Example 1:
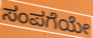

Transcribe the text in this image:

ಸಂಪಗೆಯೇ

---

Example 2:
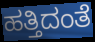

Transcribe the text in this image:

ಹತ್ತಿದಂತೆ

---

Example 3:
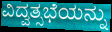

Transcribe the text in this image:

ವಿದ್ವತ್ಸಭೆಯನ್ನು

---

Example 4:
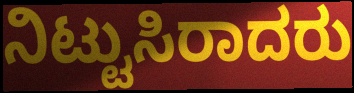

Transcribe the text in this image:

ನಿಟ್ಟುಸಿರಾದರು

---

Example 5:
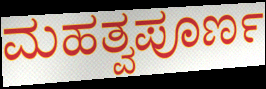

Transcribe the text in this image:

ಮಹತ್ವಪೂರ್ಣ